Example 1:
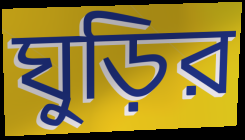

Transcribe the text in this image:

ঘুড়ির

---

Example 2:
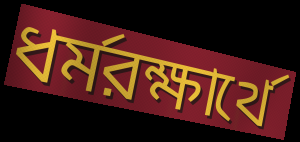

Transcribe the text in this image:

ধর্মরক্ষার্থে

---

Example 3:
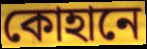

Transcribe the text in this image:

কোহানে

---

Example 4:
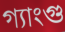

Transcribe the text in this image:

গ্যাংগু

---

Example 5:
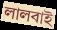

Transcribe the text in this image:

লালবাই